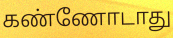
கண்ணோடாது